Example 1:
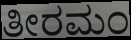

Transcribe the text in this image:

ತೀರಮಂ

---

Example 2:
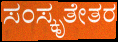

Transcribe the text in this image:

ಸಂಸ್ಕೃತೇತರ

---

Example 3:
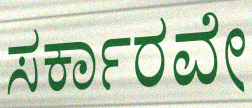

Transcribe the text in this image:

ಸರ್ಕಾರವೇ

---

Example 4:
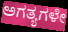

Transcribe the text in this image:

ಅಗತ್ಯಗಳೇ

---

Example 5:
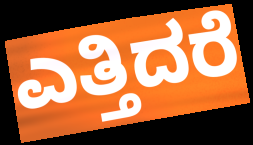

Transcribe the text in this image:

ಎತ್ತಿದರೆ